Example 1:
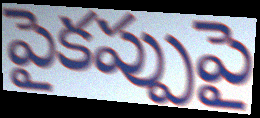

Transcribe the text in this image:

పైకప్పుపై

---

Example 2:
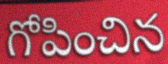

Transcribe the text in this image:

గోపించిన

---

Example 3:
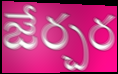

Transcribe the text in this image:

జేర్చర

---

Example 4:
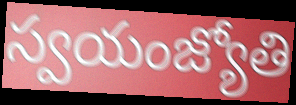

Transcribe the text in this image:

స్వయంజ్యోతి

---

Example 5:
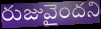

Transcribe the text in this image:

రుజువైందని